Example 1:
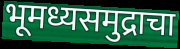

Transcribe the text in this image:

भूमध्यसमुद्राचा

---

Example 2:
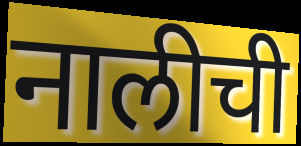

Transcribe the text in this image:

नालीची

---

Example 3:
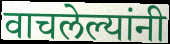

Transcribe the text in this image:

वाचलेल्यांनी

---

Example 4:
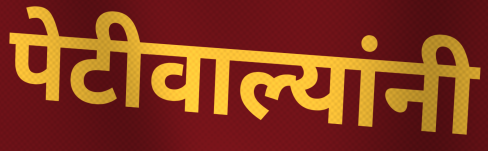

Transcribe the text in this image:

पेटीवाल्यांनी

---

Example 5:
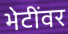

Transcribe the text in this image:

भेटींवर